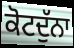
ਕੋਟਦੁੱਨਾ